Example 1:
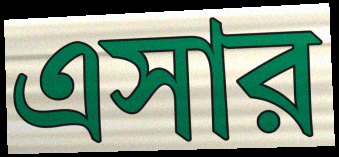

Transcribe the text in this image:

এসার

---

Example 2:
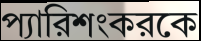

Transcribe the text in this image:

প্যারিশংকরকে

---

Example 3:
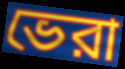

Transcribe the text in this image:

ভেরা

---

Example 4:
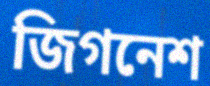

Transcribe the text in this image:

জিগনেশ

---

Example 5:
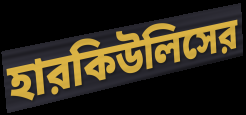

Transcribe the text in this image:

হারকিউলিসের